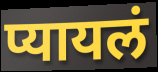
प्यायलं